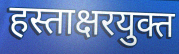
हस्ताक्षरयुक्त